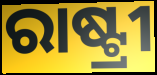
ରାଷ୍ଟ୍ରୀ